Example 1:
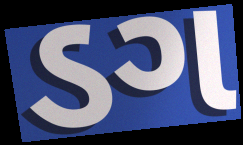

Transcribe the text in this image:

ડગ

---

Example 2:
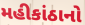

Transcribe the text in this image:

મહીકાંઠાનો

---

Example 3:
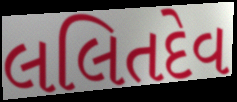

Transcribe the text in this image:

લલિતદેવ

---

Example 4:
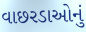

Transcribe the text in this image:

વાછરડાઓનું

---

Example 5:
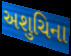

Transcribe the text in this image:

અશુચિના